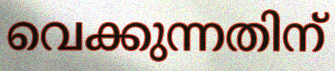
വെക്കുന്നതിന്